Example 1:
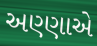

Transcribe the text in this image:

અણ્ણાએ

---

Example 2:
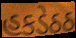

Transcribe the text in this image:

હકડેઠઠ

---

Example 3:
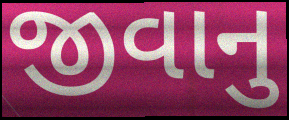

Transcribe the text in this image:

જીવાનુ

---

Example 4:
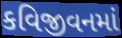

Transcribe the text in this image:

કવિજીવનમાં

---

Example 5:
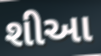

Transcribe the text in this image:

શીઆ